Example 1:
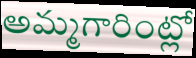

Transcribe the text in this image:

అమ్మగారింట్లో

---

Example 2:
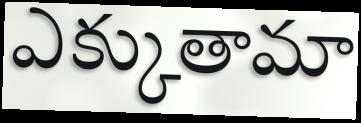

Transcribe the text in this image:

ఎక్కుతామా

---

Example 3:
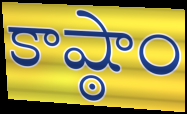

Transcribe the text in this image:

కాష్ఠాం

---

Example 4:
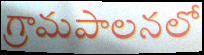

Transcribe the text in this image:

గ్రామపాలనలో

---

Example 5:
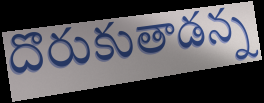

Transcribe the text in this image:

దొరుకుతాడన్న